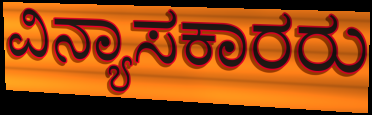
ವಿನ್ಯಾಸಕಾರರು